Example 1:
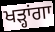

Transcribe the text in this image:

ਖੜ੍ਹਾਂਗਾ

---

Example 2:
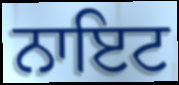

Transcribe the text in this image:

ਨਾਇਟ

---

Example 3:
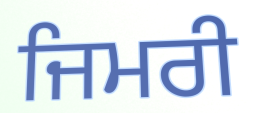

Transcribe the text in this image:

ਜਿਮਰੀ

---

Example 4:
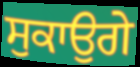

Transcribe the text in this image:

ਸੁਕਾਉਗੇ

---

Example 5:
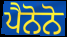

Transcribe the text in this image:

ਪੈਨੋਨੋ